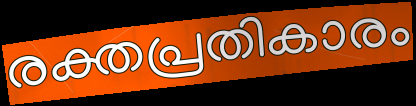
രക്തപ്രതികാരം